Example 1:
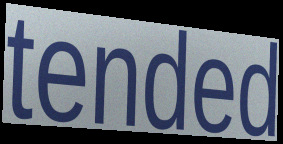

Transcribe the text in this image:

tended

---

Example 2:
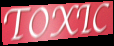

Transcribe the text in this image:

TOXIC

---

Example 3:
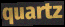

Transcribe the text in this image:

quartz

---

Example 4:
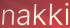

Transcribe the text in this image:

nakki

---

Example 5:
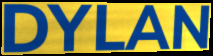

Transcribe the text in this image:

DYLAN